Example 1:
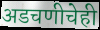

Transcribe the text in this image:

अडचणीचेही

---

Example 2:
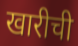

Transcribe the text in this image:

खारीची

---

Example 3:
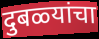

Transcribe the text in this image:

दुबळ्यांचा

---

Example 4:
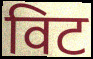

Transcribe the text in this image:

विट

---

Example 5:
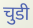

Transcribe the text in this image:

चुडी